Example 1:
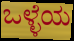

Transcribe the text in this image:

ಒಳ್ಳೆಯ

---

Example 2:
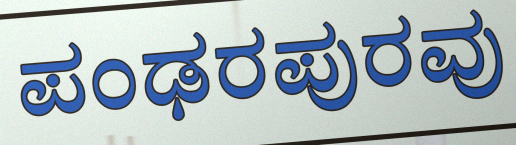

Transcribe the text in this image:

ಪಂಢರಪುರವು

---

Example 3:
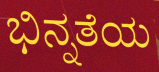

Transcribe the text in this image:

ಭಿನ್ನತೆಯ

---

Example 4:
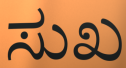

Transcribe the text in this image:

ಸುಖ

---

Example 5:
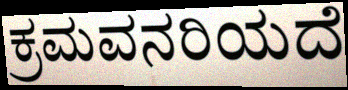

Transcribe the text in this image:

ಕ್ರಮವನರಿಯದೆ